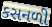
કસનળી